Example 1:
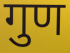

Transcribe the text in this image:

गुण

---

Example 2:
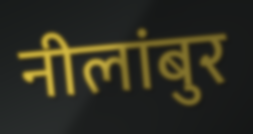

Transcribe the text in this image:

नीलांबुर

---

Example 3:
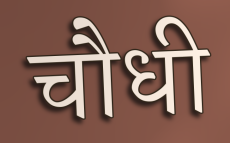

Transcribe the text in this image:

चौधी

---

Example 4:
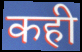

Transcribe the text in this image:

कही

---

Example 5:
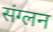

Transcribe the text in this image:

संग्लन